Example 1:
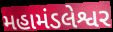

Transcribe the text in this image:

મહામંડલેશ્વર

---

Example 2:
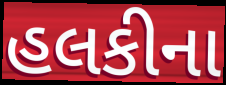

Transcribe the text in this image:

હલકીના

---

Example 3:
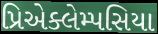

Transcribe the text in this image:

પ્રિએક્લેમ્પસિયા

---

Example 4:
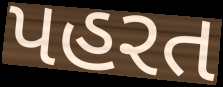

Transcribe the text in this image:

પહરત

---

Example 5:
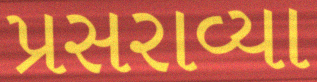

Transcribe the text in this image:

પ્રસરાવ્યા